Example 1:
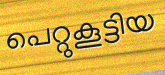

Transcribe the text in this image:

പെറ്റുകൂട്ടിയ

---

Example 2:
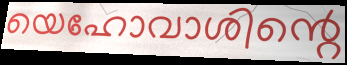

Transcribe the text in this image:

യെഹോവാശിന്റെ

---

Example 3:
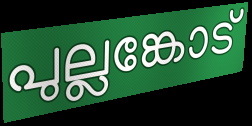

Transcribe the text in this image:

പുല്ലങ്കോട്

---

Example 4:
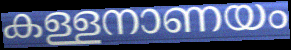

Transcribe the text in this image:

കള്ളനാണയം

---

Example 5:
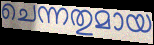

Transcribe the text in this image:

ചെന്നതുമായ